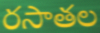
రసాతల